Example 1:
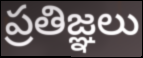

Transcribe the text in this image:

ప్రతిజ్ఞలు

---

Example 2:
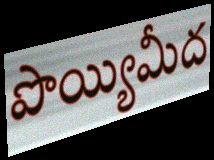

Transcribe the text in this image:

పొయ్యిమీద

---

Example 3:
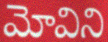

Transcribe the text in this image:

మోవిని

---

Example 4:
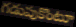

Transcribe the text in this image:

గడుపుకొంటూ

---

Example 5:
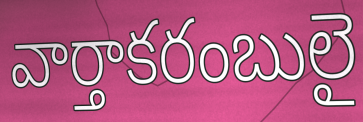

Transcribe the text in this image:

వార్తాకరంబులై